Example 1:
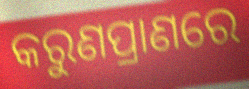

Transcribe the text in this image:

କରୁଣପ୍ରାଣରେ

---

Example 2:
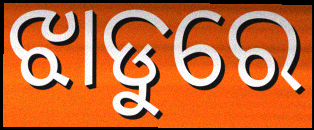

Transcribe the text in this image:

ଝାଡୁରେ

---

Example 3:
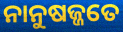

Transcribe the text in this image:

ନାନୁଷଜ୍ଜତେ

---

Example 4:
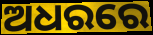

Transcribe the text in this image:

ଅଧରରେ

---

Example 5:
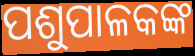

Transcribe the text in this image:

ପଶୁପାଳକଙ୍କ